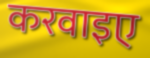
करवाइए